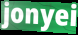
jonyei